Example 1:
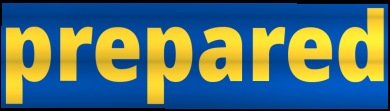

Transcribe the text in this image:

prepared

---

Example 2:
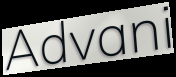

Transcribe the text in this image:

Advani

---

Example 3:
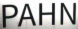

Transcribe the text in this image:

PAHN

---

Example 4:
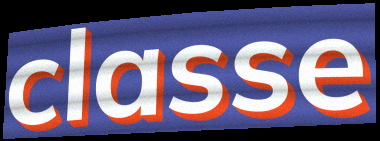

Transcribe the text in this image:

classe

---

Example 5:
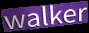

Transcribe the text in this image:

walker